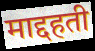
माद्दहती